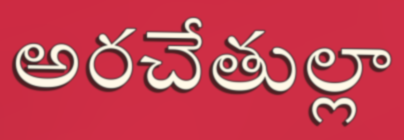
అరచేతుల్లా